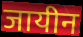
जायीन